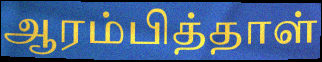
ஆரம்பித்தாள்